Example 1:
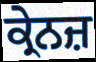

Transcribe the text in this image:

ਕ੍ਰੇਨਜ਼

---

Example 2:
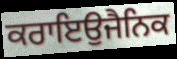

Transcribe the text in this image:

ਕਰਾਇਉਜੈਨਿਕ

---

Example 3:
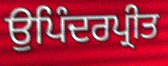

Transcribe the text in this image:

ਉਪਿੰਦਰਪ੍ਰੀਤ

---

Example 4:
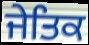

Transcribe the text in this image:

ਜੇਤਿਕ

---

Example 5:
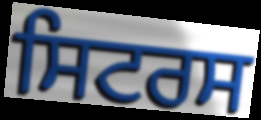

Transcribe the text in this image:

ਸਿਟਰਸ